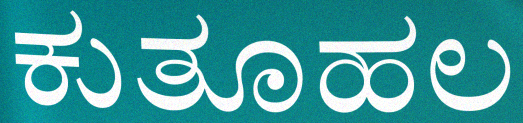
ಕುತೂಹಲ